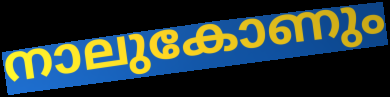
നാലുകോണും